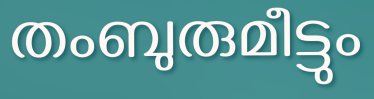
തംബുരുമീട്ടും